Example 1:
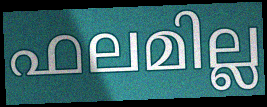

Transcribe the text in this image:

ഫലമില്ല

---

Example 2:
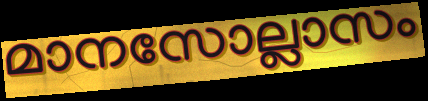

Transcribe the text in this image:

മാനസോല്ലാസം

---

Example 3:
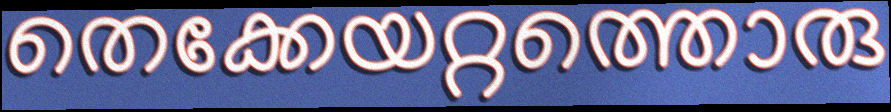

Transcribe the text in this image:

തെക്കേയറ്റത്തൊരു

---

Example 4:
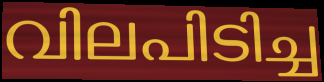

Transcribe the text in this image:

വിലപിടിച്ച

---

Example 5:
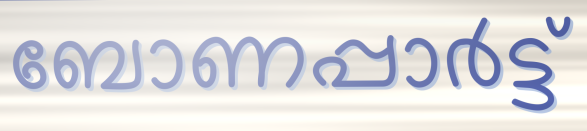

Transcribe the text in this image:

ബോണപ്പാർട്ട്